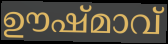
ഊഷ്മാവ്